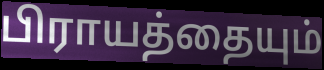
பிராயத்தையும்